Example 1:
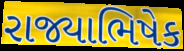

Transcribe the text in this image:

રાજ્યાભિષેક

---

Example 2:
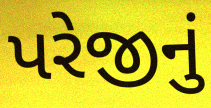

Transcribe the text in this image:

પરેજીનું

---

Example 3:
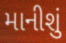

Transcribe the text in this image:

માનીશું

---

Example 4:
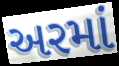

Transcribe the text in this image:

અરમાં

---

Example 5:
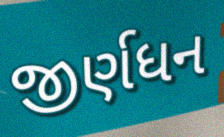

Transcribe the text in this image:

જીર્ણધન